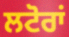
ਲਟੋਰਾਂ